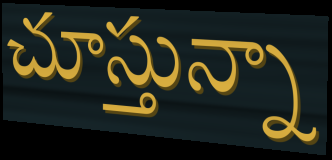
చూస్తున్నా